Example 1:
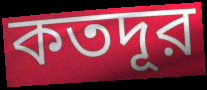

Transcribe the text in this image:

কতদূর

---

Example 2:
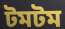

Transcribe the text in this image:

টমটম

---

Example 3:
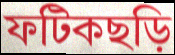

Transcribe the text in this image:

ফটিকছড়ি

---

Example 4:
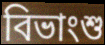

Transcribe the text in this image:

বিভাংশু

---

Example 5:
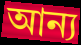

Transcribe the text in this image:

আন্য